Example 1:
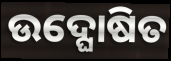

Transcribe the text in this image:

ଉଦ୍ଘୋଷିତ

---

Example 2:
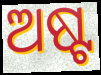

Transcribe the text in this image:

ଅଷ୍ଟ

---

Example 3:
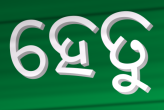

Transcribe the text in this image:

ହେତୁ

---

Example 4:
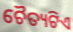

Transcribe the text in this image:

ଚୈତ୍ୟଟିଏ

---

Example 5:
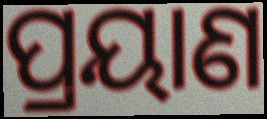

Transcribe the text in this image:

ପ୍ରୟାଣ